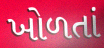
ખોળતાં